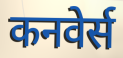
कनवेर्स